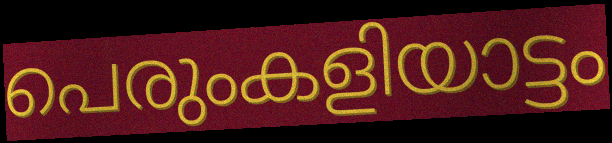
പെരുംകളിയാട്ടം